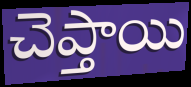
చెప్తాయి